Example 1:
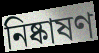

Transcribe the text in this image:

নিষ্কাষণ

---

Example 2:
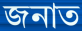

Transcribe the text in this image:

জনাত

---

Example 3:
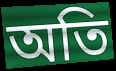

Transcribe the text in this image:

অতি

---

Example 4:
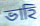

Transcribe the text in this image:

ভাহি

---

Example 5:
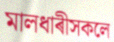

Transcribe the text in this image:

মালধাৰীসকলে